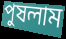
পুষলাম